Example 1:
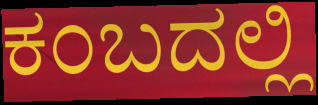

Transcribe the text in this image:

ಕಂಬದಲ್ಲಿ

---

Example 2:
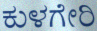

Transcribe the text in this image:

ಕುಳಗೇರಿ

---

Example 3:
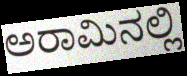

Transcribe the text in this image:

ಅರಾಮಿನಲ್ಲಿ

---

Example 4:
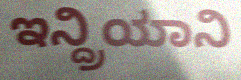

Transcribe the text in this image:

ಇನ್ದ್ರಿಯಾನಿ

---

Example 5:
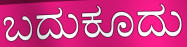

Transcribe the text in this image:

ಬದುಕೂದು